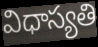
విధాస్యతి